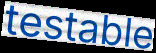
testable